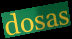
dosas